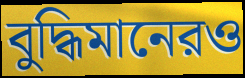
বুদ্ধিমানেরও